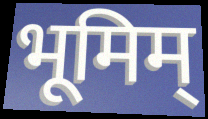
भूमिम्